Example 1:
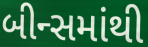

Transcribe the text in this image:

બીન્સમાંથી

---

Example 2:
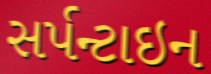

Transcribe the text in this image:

સર્પન્ટાઇન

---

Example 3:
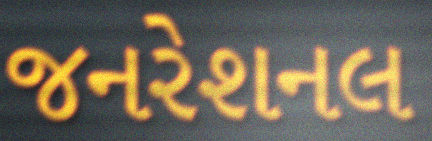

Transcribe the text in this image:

જનરેશનલ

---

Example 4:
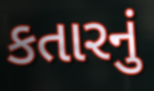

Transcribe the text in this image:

કતારનું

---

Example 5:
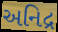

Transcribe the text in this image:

અનિદ્ર